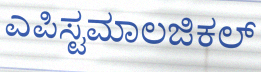
ಎಪಿಸ್ಟಮಾಲಜಿಕಲ್